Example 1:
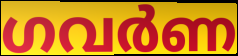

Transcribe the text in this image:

ഗവർണ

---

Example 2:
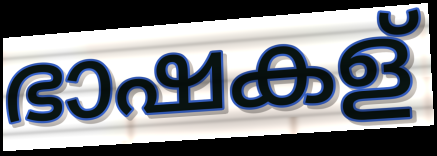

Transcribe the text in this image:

ഭാഷകള്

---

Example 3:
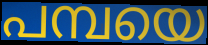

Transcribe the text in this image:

പമ്പയെ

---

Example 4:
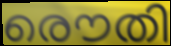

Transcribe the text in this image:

രൌതി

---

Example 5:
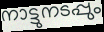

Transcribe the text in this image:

നാട്ടുനടപ്പും